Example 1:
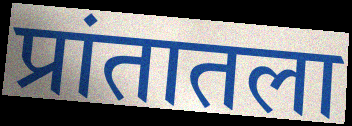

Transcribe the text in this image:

प्रांतातला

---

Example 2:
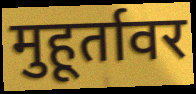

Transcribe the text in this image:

मुहूर्तावर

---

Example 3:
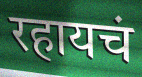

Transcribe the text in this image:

रहायचं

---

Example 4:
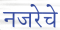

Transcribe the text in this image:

नजरेचे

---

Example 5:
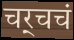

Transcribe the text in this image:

चर्चचं